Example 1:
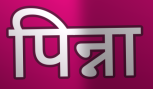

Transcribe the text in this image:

पिन्ना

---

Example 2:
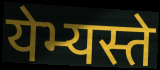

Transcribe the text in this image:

येभ्यस्ते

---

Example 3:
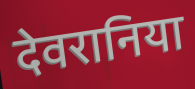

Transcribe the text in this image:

देवरानिया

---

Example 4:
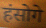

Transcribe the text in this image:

हंसोगे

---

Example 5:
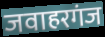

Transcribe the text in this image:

जवाहरगंज